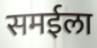
समईला